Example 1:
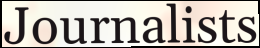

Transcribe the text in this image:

Journalists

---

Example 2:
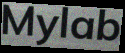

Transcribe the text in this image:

Mylab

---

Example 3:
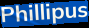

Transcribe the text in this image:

Phillipus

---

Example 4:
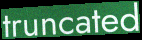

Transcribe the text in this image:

truncated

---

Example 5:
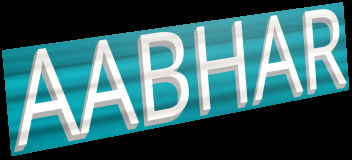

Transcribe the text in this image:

AABHAR